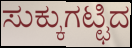
ಸುಕ್ಕುಗಟ್ಟಿದ